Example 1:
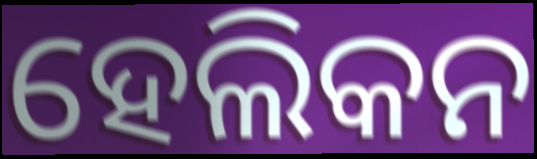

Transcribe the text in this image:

ହେଲିକନ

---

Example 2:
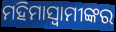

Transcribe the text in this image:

ମହିମାସ୍ୱାମୀଙ୍କର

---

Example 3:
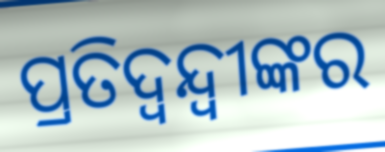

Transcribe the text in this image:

ପ୍ରତିଦ୍ୱନ୍ଦ୍ୱୀଙ୍କର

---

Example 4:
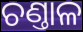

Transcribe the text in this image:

ଚଣ୍ତାଳ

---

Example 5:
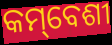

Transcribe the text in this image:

କମ୍‌ବେଶୀ